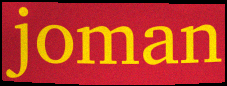
joman